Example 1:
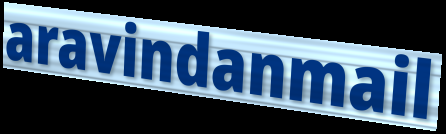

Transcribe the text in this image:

aravindanmail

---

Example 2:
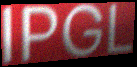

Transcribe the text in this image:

IPGL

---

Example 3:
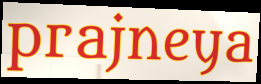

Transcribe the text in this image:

prajneya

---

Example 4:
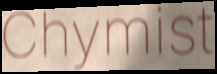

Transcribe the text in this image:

Chymist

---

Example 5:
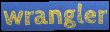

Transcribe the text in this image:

wrangler